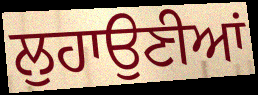
ਲੁਹਾਉਣੀਆਂ